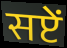
सप्टें